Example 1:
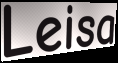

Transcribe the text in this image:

Leisa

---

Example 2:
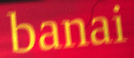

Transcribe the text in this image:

banai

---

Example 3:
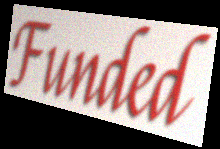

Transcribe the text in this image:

Funded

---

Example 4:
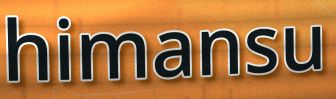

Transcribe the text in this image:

himansu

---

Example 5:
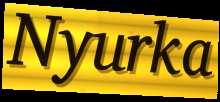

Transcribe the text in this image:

Nyurka